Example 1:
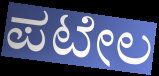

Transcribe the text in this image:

ಪಟೇಲ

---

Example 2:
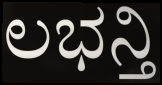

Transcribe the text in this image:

ಲಭನ್ತಿ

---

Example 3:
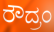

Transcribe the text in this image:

ರೌದ್ರಂ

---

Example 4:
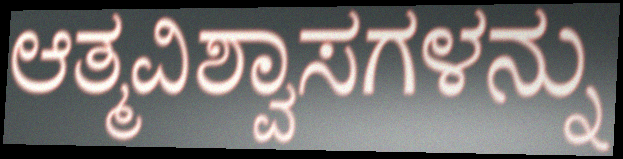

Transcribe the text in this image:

ಆತ್ಮವಿಶ್ವಾಸಗಳನ್ನು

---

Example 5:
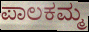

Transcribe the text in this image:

ಪಾಲಕಮ್ಮ